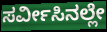
ಸರ್ವೀಸಿನಲ್ಲೇ